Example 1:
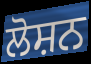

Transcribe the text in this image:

ਲੋਸ਼ਨ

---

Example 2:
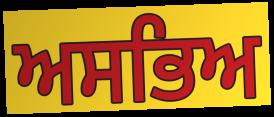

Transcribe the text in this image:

ਅਸਭਿਅ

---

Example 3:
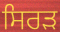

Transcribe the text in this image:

ਸਿਰਡ਼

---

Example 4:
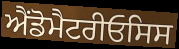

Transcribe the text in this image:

ਐਂਡੋਮੈਟਰੀਓਸਿਸ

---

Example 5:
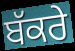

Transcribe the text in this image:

ਬੱਕਰੇ